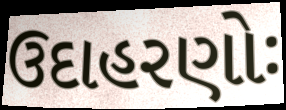
ઉદાહરણોઃ